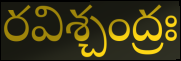
రవిశ్చంద్రః